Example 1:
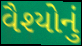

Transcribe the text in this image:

વૈશ્યોનું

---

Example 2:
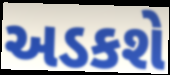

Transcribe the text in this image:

અડકશે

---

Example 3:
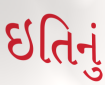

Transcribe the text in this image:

ઇતિનું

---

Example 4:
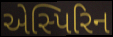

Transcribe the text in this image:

એસ્પિરિન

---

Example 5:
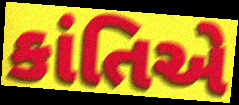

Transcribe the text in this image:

કાંતિએ